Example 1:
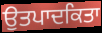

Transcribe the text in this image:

ਉਤਪਾਦਕਿਤਾ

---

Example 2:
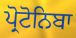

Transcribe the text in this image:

ਪ੍ਰੋਟੋਨਿਬਾ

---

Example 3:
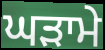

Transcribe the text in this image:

ਘੜਾਮੇ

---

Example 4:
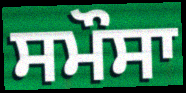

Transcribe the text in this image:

ਸਮੌਸਾ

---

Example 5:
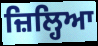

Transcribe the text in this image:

ਜ਼ਿਲ੍ਹਿਆ